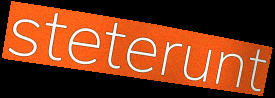
steterunt